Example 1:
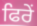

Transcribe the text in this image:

ਫਿਰੇਂ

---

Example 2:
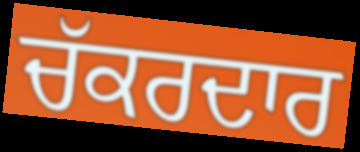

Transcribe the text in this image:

ਚੱਕਰਦਾਰ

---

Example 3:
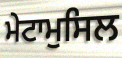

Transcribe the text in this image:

ਮੇਟਾਮੁਸਿਲ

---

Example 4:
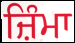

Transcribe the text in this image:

ਜ਼ਿੰਮਾ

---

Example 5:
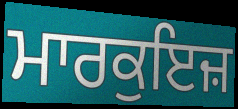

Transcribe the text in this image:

ਮਾਰਕੁਇਜ਼